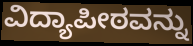
ವಿದ್ಯಾಪೀಠವನ್ನು